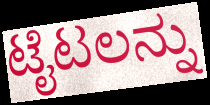
ಟೈಟಲನ್ನು